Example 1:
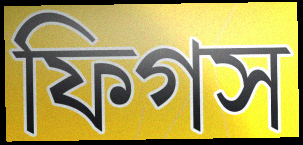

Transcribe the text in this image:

ফিগস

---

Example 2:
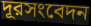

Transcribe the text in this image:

দূরসংবেদন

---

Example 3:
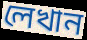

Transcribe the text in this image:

লেখান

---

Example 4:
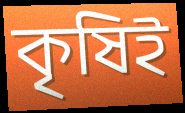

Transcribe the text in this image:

কৃষিই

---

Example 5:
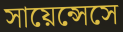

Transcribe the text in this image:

সায়েন্সেসে